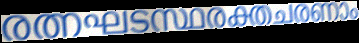
രത്നഘടസ്ഥരക്തചരണാം